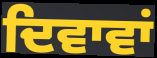
ਦਿਵਾਵਾਂ